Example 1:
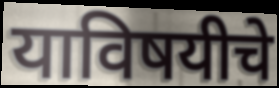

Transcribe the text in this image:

याविषयीचे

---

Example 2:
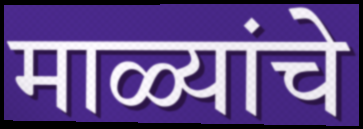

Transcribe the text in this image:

माळ्यांचे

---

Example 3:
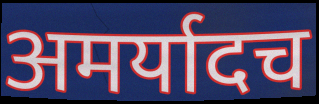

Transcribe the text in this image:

अमर्यादच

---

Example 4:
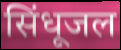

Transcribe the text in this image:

सिंधूजल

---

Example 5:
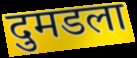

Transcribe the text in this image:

दुमडला